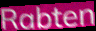
Rabten